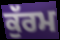
ਕੁੱਰਮ